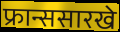
फ्रान्ससारखे